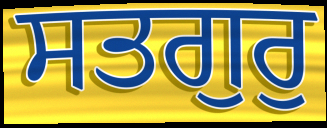
ਸਤਗੁਰੁ